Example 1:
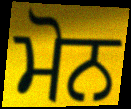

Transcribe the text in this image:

ਮੋਨ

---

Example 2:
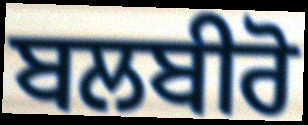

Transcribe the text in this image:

ਬਲਬੀਰੋ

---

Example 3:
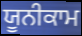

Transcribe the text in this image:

ਯੂਨੀਕਾਮ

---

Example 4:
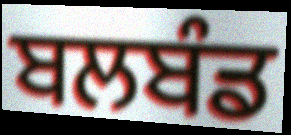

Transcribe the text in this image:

ਬਲਬੰਡ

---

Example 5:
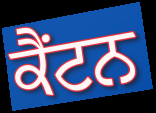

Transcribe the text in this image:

ਕੈਂਟਨ